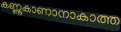
കണ്ണുകാണാനാകാത്ത